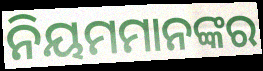
ନିୟମମାନଙ୍କର